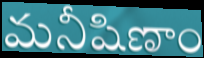
మనీషిణాం